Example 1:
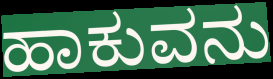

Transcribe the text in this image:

ಹಾಕುವನು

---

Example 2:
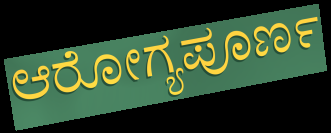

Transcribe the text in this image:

ಆರೋಗ್ಯಪೂರ್ಣ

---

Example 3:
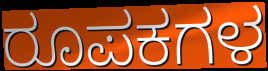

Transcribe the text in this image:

ರೂಪಕಗಳ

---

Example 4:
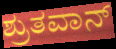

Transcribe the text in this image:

ಶ್ರುತವಾನ್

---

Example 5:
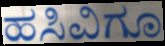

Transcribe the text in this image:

ಹಸಿವಿಗೂ